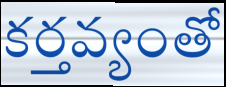
కర్తవ్యంతో